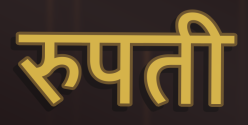
रुपती